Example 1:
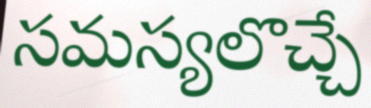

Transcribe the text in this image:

సమస్యలొచ్చే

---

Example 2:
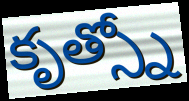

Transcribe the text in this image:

కృత్స్నో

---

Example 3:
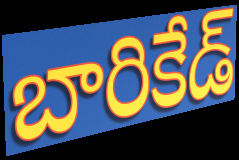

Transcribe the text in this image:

బారికేడ్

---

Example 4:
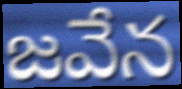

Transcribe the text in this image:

జవేన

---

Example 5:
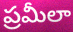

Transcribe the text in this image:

ప్రమీలా